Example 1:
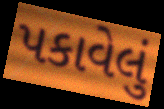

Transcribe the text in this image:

પકાવેલું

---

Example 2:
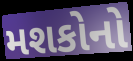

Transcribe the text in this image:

મશકોનો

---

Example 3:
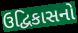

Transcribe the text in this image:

ઉદ્વિકાસનો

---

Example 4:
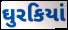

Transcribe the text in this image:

ઘુરકિયાં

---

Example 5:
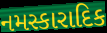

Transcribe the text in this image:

નમસ્કારાદિક